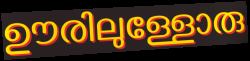
ഊരിലുള്ളോരു